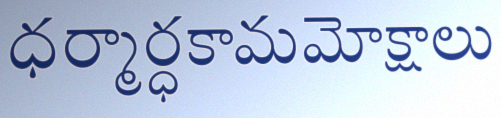
ధర్మార్ధకామమోక్షాలు